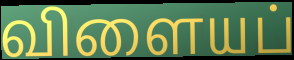
விளையப்